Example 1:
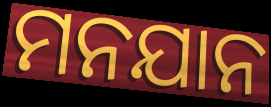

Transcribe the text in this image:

ମନଯାନ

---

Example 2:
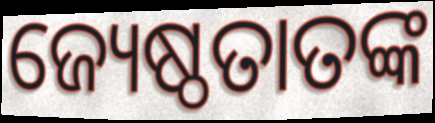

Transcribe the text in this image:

ଜ୍ୟେଷ୍ଠତାତଙ୍କ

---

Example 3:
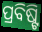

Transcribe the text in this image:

ପ୍ରବିଷ୍ଟି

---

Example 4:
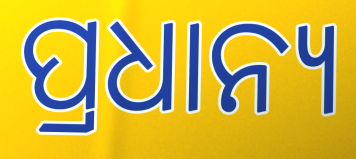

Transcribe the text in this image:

ପ୍ରଧାନ୍ୟ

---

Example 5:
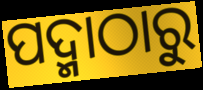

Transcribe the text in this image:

ପଦ୍ମାଠାରୁ